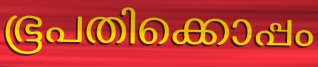
ഭൂപതിക്കൊപ്പം